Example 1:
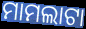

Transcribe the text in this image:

ମାମଲାଟା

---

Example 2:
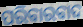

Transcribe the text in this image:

ପରିବାରବାଦ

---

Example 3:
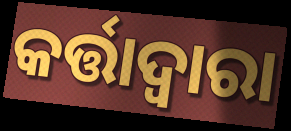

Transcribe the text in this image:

କର୍ତ୍ତାଦ୍ଵାରା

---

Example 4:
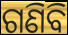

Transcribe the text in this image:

ଗଣିବି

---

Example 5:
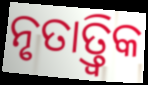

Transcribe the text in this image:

ନୃତାତ୍ତ୍ବିକ